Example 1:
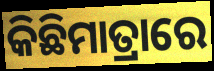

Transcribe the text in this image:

କିଛିମାତ୍ରାରେ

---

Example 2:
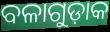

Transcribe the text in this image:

ବଳାଗୁଡ଼ାକ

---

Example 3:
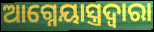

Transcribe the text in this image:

ଆଗ୍ନେୟାସ୍ତ୍ରଦ୍ୱାରା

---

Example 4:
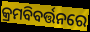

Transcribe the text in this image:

କ୍ରମବିବର୍ତ୍ତନରେ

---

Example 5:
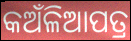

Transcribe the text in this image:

କଅଁଳିଆପତ୍ର